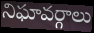
నిఘావర్గాలు